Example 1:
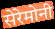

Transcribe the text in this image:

सेरेमोनी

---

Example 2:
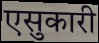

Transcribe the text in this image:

एसुकारी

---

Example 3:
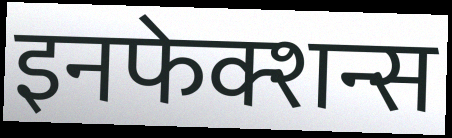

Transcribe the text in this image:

इनफेक्शन्स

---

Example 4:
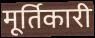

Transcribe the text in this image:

मूर्तिकारी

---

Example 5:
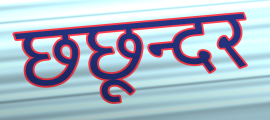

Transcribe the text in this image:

छछून्दर